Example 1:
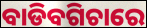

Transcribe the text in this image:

ବାଡିବଗିଚାରେ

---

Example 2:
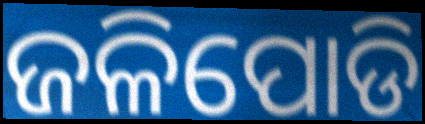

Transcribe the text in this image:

ଜଳିପୋଡି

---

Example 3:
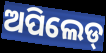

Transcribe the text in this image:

ଅପିଲେଡ୍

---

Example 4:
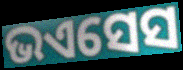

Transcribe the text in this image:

ଭଏସେସ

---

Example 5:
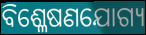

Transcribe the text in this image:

ବିଶ୍ଳେଷଣଯୋଗ୍ୟ